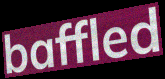
baffled